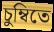
চুম্বিতে